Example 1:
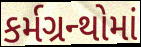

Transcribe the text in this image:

કર્મગ્રન્થોમાં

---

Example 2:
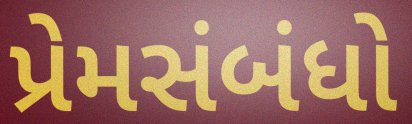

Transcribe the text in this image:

પ્રેમસંબંધો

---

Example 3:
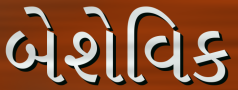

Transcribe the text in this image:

બેશેવિક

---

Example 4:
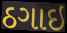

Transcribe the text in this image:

ઠગાઇ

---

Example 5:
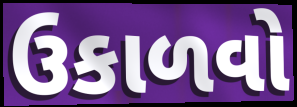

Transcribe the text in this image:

ઉકાળવો